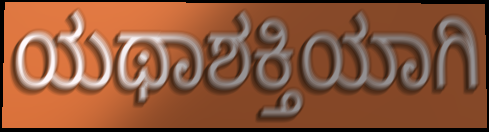
ಯಥಾಶಕ್ತಿಯಾಗಿ